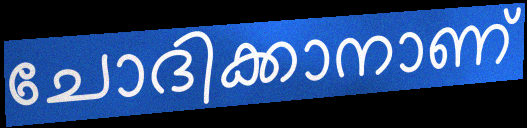
ചോദിക്കാനാണ്